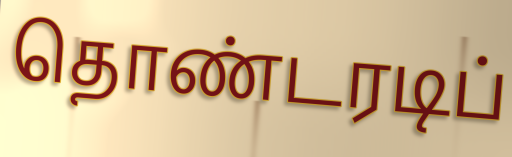
தொண்டரடிப்